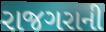
રાજગરાની